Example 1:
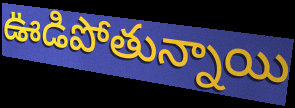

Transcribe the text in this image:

ఊడిపోతున్నాయి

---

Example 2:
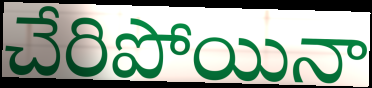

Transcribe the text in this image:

చేరిపోయినా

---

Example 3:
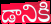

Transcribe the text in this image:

డానికి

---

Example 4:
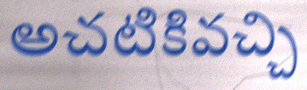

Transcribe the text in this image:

అచటికివచ్చి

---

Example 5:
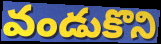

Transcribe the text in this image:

వండుకొని